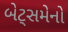
બેટ્સમેનો